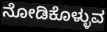
ನೋಡಿಕೊಳ್ಳುವ